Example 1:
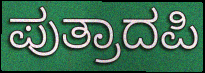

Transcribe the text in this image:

ಪುತ್ರಾದಪಿ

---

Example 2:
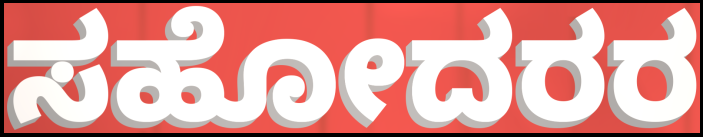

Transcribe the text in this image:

ಸಹೋದರರ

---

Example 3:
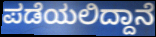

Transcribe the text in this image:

ಪಡೆಯಲಿದ್ದಾನೆ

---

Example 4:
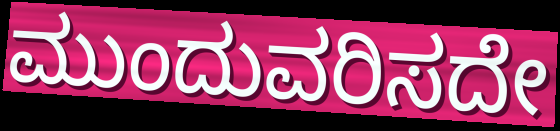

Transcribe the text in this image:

ಮುಂದುವರಿಸದೇ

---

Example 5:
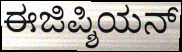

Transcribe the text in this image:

ಈಜಿಪ್ಶಿಯನ್